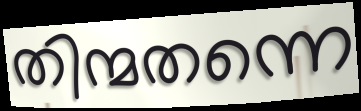
തിന്മതന്നെ